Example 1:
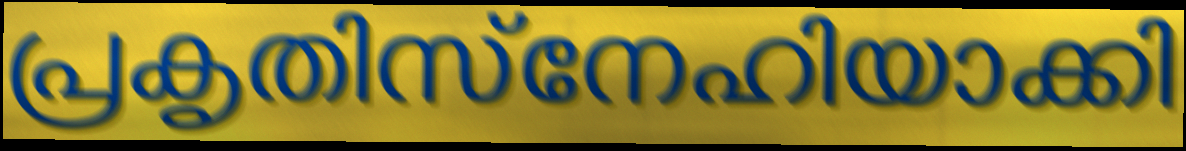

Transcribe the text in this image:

പ്രകൃതിസ്‌നേഹിയാക്കി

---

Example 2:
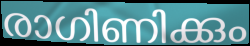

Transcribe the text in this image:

രാഗിണിക്കും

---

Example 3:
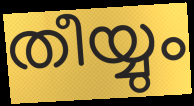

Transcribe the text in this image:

തീയ്യും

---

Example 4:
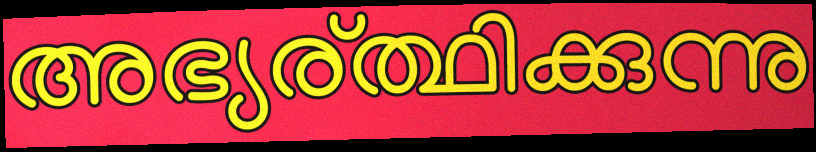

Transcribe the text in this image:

അഭ്യര്ത്ഥിക്കുന്നു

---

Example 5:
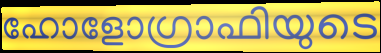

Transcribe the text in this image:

ഹോളോഗ്രാഫിയുടെ